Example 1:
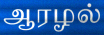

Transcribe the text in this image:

ஆரழல்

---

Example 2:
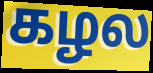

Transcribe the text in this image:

கழல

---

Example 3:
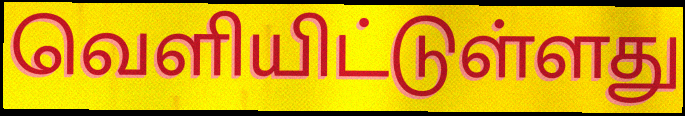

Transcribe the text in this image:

வெளியிட்டுள்ளது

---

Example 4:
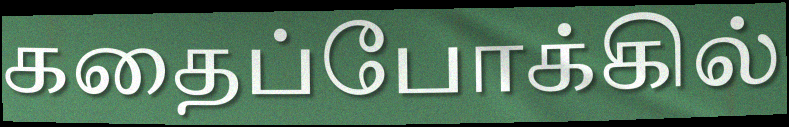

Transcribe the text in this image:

கதைப்போக்கில்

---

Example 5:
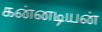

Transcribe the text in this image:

கன்னடியன்